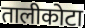
तालीकोटा